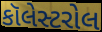
કૉલેસ્ટરોલ